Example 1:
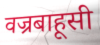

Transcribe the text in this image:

वज्रबाहूसी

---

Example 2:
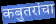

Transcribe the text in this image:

कबुतरांचा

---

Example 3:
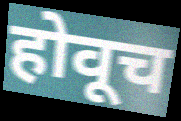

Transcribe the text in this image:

होवूच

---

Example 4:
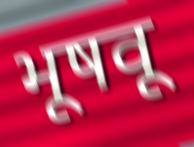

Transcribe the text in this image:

भूषवू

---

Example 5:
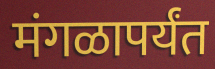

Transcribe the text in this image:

मंगळापर्यंत